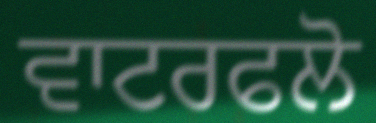
ਵਾਟਰਫਲੋ